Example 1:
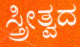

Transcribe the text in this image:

ಸ್ತ್ರೀತ್ವದ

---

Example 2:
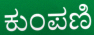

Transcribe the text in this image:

ಕುಂಪಣಿ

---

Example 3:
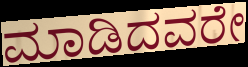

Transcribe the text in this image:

ಮಾಡಿದವರೇ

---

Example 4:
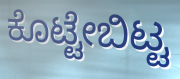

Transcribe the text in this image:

ಕೊಟ್ಟೇಬಿಟ್ಟ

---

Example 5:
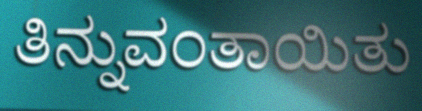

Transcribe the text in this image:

ತಿನ್ನುವಂತಾಯಿತು